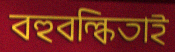
বহুবল্কিতাই